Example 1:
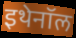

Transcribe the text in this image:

इथेनॉल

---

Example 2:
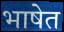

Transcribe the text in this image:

भाषेत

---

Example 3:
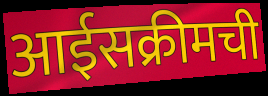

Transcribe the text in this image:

आईसक्रीमची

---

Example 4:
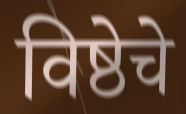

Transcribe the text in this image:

विष्ठेचे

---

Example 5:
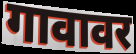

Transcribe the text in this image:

गावावर